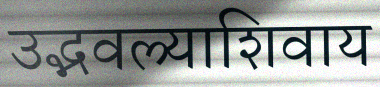
उद्भवल्याशिवाय